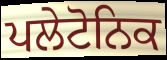
ਪਲੇਟੋਨਿਕ